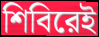
শিবিরেই